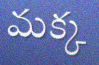
మక్క